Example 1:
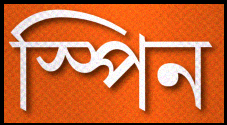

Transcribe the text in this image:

স্পিন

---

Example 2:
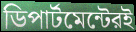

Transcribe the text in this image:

ডিপার্টমেন্টেরই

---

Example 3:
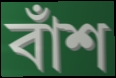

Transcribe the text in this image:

বাঁশ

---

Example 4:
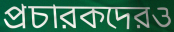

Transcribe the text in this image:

প্রচারকদেরও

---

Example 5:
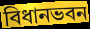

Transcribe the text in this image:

বিধানভবন